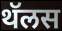
थॅलस